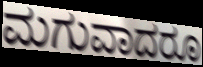
ಮಗುವಾದರೂ